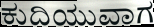
ಕುದಿಯುವಾಗ